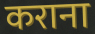
कराना